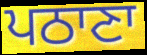
ਪਠਾਣਾ